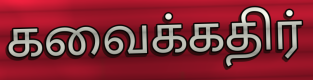
கவைக்கதிர்